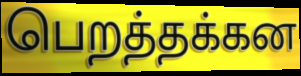
பெறத்தக்கன